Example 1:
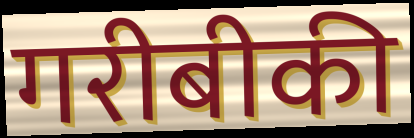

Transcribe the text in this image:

गरीबीकी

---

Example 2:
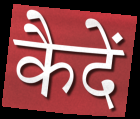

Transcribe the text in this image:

कैदें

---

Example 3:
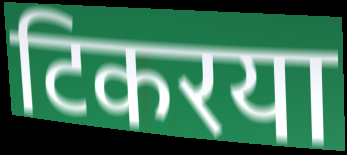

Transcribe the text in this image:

टिकरया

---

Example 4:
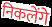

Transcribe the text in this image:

निकलेंगे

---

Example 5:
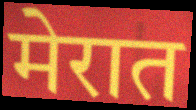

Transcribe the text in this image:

मेरात